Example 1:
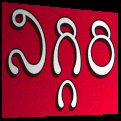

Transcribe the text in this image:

నిగ్గిరి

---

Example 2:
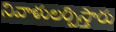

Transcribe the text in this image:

నివాళులర్పిస్తారు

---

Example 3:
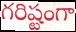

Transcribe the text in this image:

గరిష్టంగా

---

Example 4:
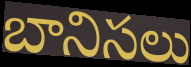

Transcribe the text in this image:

బానిసలు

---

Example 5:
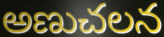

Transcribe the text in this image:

అణుచలన